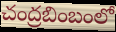
చంద్రబింబంలో